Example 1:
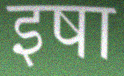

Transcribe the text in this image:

इषा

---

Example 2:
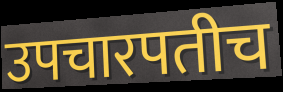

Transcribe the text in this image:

उपचारपतीच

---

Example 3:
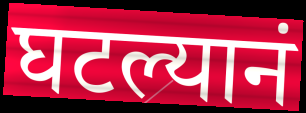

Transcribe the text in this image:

घटल्यानं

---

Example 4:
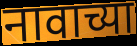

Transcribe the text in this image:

नावाच्या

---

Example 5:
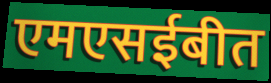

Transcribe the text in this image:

एमएसईबीत